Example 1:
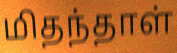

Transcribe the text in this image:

மிதந்தாள்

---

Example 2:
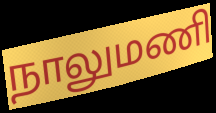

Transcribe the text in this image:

நாலுமணி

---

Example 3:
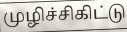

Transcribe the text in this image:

முழிச்சிகிட்டு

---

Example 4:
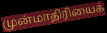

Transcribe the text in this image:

முன்மாதிரியைக்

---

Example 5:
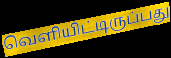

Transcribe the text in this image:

வெளியிட்டிருப்பது